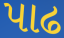
પાઢ